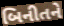
બિનીતને